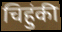
चिहुंकी